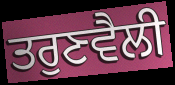
ਤਰੁਣਵੈਲੀ